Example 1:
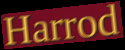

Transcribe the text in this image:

Harrod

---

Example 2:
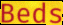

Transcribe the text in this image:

Beds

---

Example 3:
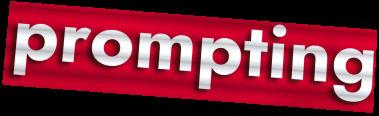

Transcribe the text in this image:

prompting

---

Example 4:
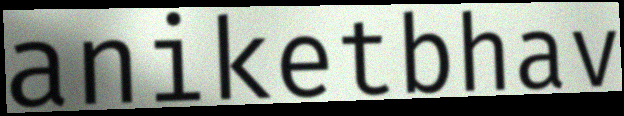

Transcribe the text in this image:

aniketbhav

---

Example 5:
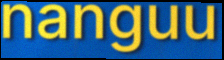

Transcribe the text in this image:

nanguu